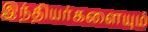
இந்தியர்களையும்